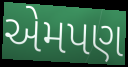
એમપણ